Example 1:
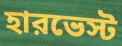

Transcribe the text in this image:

হারভেস্ট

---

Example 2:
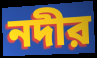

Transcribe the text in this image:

নদীর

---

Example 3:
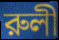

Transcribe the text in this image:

রুলী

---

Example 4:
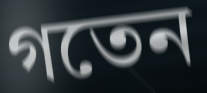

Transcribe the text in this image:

গতেন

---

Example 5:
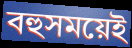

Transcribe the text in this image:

বহুসময়েই